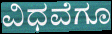
ವಿಧವೆಗೂ